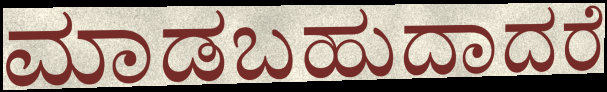
ಮಾಡಬಹುದಾದರೆ